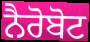
ਨੈਰੋਬੋਟ